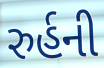
રુર્હની